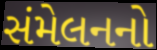
સંમેલનનો